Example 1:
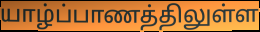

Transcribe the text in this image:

யாழ்ப்பாணத்திலுள்ள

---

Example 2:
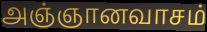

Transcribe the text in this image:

அஞ்ஞானவாசம்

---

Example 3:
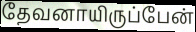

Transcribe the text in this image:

தேவனாயிருப்பேன்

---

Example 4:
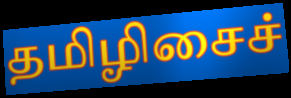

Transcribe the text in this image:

தமிழிசைச்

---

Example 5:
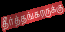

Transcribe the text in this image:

தீர்த்தங்கரருக்கு